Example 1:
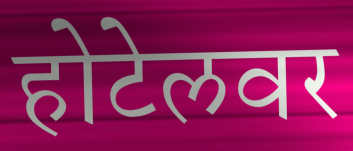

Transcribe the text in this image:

होटेलवर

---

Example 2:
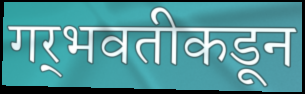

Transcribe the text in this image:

गर्भवतीकडून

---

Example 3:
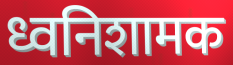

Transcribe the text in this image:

ध्वनिशामक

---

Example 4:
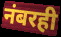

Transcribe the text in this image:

नंबरही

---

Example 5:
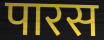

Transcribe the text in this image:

पारस